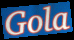
Gola